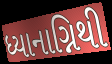
ધ્યાનાગ્નિથી